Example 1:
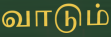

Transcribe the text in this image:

வாடும்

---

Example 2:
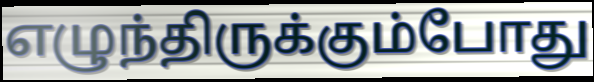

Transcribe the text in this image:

எழுந்திருக்கும்போது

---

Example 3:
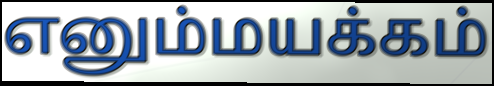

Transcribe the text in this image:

எனும்மயக்கம்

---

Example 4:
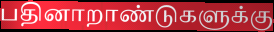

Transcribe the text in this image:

பதினாறாண்டுகளுக்கு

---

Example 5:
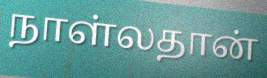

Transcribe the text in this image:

நாள்லதான்